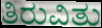
ತಿರುವಿತು